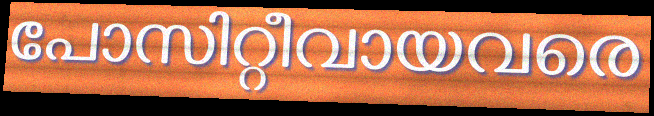
പോസിറ്റീവായവരെ